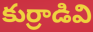
కుర్రాడివి